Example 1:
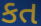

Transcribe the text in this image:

કત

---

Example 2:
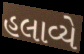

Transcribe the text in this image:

હલાવ્યે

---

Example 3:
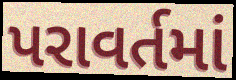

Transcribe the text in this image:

પરાવર્તમાં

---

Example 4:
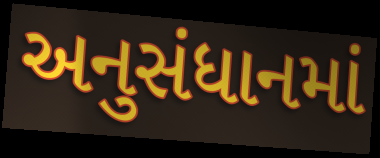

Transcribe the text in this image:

અનુસંધાનમાં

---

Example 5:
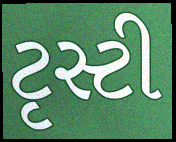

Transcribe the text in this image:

ટૃસ્ટી